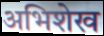
अभिशेख